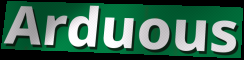
Arduous